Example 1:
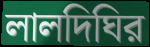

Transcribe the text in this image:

লালদিঘির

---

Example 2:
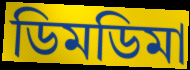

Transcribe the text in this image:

ডিমডিমা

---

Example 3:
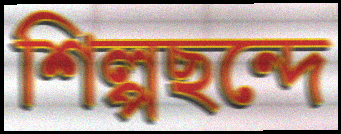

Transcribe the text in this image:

শিল্পছন্দে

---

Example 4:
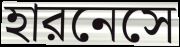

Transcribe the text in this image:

হারনেসে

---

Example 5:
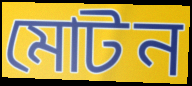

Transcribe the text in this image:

মোটন